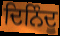
ਦਿਨਿੰਦੂ